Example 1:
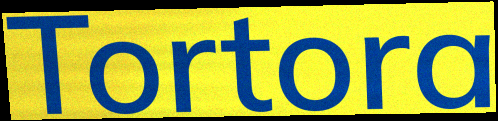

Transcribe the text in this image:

Tortora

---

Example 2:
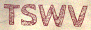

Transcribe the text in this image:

TSWV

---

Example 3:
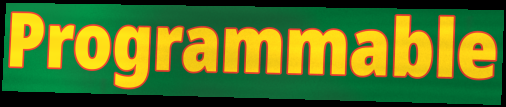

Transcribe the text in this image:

Programmable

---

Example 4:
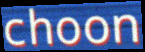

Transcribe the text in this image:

choon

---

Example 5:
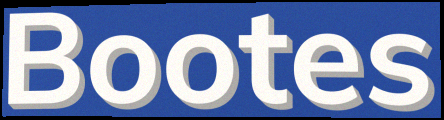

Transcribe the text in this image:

Bootes